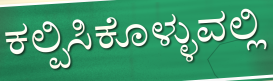
ಕಲ್ಪಿಸಿಕೊಳ್ಳುವಲ್ಲಿ